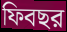
ফিবছর